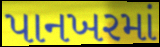
પાનખરમાં